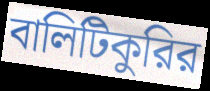
বালিটিকুরির